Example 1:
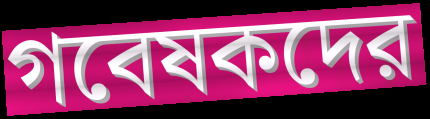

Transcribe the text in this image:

গবেষকদের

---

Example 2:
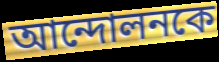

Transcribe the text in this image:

আন্দোলনকে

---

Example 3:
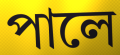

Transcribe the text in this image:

পালে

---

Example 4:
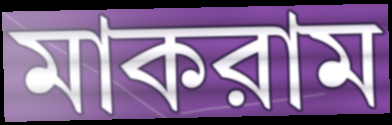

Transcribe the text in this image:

মাকরাম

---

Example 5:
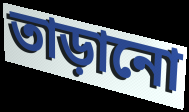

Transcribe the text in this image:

তাড়ানো